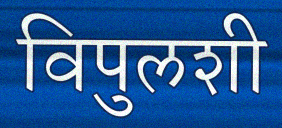
विपुलशी